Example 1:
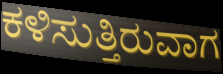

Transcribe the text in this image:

ಕಳಿಸುತ್ತಿರುವಾಗ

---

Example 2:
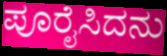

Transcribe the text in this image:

ಪೂರೈಸಿದನು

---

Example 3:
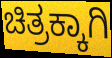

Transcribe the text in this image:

ಚಿತ್ರಕ್ಕಾಗಿ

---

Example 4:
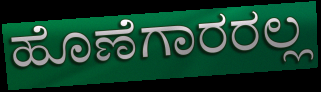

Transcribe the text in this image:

ಹೊಣೆಗಾರರಲ್ಲ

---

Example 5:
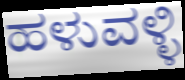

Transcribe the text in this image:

ಹಳುವಳ್ಳಿ